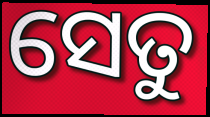
ସେତୁ